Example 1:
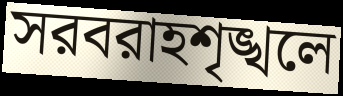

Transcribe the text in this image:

সরবরাহশৃঙ্খলে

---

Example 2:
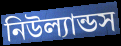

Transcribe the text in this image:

নিউল্যান্ডস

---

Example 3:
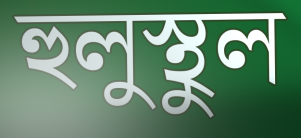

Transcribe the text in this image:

হুলুস্থুল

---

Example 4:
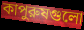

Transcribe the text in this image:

কাপুরুষগুলো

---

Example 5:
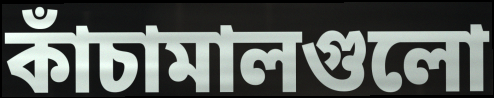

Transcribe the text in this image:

কাঁচামালগুলো